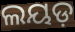
ଲୟଡ଼